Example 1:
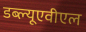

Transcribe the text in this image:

डब्ल्यूएवीएल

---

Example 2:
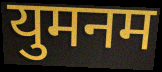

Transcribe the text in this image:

युमनम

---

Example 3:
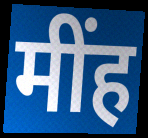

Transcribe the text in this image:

मींह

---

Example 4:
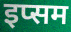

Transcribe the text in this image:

इप्सम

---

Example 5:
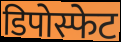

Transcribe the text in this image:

डिपोस्फेट